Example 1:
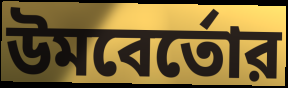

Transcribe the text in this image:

উমবের্তোর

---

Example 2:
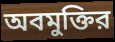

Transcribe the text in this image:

অবমুক্তির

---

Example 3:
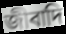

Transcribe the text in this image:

জীবাদি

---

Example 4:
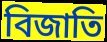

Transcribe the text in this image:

বিজাতি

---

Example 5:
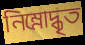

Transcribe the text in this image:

নিম্নোদ্ধৃত